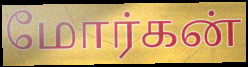
மோர்கன்